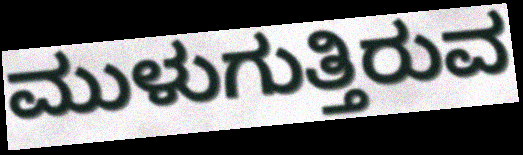
ಮುಳುಗುತ್ತಿರುವ